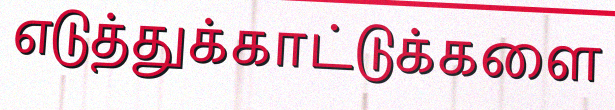
எடுத்துக்காட்டுக்களை